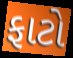
ફાટો